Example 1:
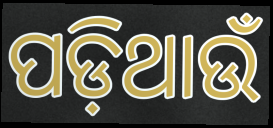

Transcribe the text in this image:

ପଡ଼ିଥାଉଁ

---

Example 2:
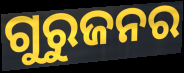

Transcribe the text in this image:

ଗୁରୁଜନର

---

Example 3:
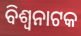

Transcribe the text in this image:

ବିଶ୍ୱନାଟକ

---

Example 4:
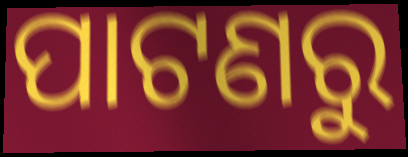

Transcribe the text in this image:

ପାଟଣରୁ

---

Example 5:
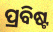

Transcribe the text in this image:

ପ୍ରବିଷ୍ଟ